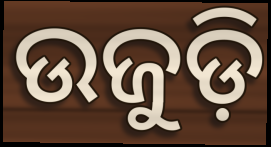
ଉଜୁଡ଼ି